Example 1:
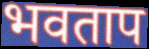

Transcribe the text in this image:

भवताप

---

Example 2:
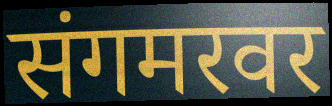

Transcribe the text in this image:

संगमरवर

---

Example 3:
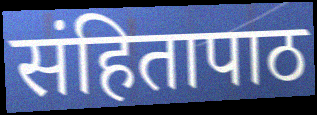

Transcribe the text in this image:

संहितापाठ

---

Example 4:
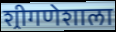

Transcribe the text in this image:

श्रीगणेशाला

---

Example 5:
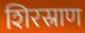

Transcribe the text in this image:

शिरस्राण